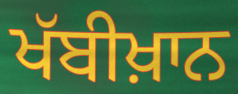
ਖੱਬੀਖ਼ਾਨ